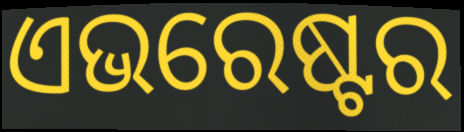
ଏଭରେଷ୍ଟର